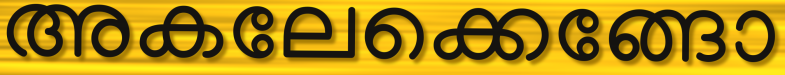
അകലേക്കെങ്ങോ